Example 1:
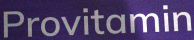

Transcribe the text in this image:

Provitamin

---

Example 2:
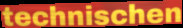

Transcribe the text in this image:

technischen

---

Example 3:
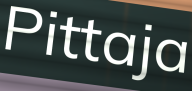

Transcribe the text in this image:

Pittaja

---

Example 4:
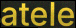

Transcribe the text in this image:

atele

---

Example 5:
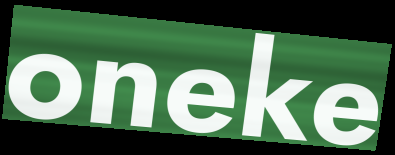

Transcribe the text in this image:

oneke